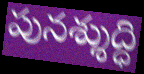
పునశ్శుద్ధి